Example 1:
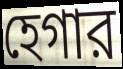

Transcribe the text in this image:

হেগার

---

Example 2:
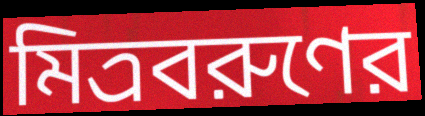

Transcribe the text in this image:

মিত্রবরুণের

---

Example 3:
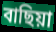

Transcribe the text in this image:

বাছিয়া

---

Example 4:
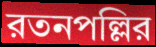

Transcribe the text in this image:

রতনপল্লির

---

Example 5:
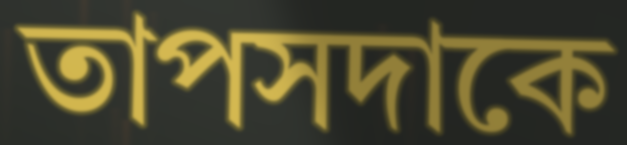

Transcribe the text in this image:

তাপসদাকে